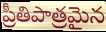
ప్రీతిపాత్రమైన